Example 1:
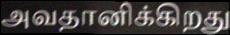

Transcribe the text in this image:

அவதானிக்கிறது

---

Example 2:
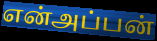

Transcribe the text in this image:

என்அப்பன்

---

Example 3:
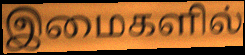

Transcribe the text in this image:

இமைகளில்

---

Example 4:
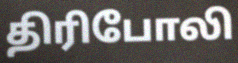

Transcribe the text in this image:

திரிபோலி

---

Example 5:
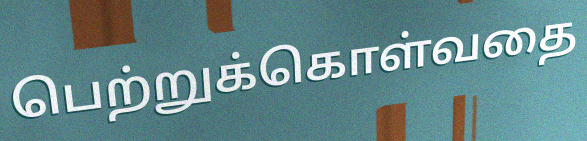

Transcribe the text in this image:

பெற்றுக்கொள்வதை